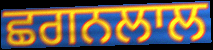
ਛਗਨਲਾਲ